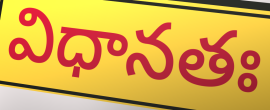
విధానతః